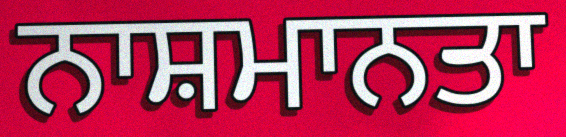
ਨਾਸ਼ਮਾਨਤਾ